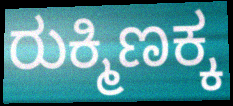
ರುಕ್ಮಿಣಕ್ಕ